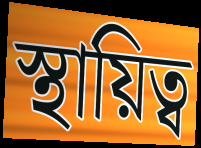
স্থায়িত্ব